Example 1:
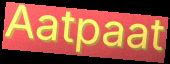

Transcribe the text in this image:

Aatpaat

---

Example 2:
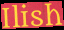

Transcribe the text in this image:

Ilish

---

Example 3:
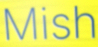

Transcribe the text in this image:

Mish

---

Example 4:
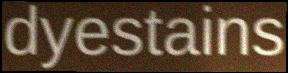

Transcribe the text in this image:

dyestains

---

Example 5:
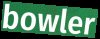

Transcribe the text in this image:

bowler